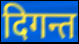
दिगन्त